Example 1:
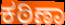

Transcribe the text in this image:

ಕಠಿಣಾ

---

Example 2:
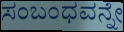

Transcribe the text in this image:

ಸಂಬಂಧವನ್ನೇ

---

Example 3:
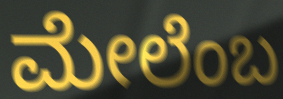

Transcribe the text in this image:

ಮೇಲೆಂಬ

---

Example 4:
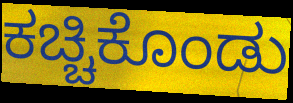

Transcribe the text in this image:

ಕಚ್ಚಿಕೊಂಡು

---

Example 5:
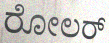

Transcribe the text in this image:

ರೋಲರ್